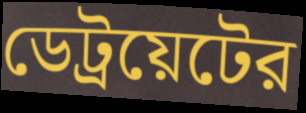
ডেট্রয়েটের